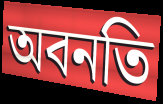
অবনতি